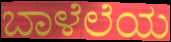
ಬಾಳೆಲೆಯ